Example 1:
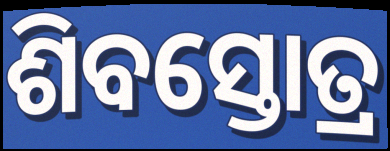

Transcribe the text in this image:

ଶିବସ୍ତୋତ୍ର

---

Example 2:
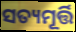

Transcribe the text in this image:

ସତ୍ୟମୂର୍ତ୍ତି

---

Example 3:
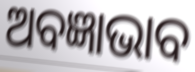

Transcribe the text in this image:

ଅବଜ୍ଞାଭାବ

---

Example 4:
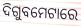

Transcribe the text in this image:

ଦିଗୁବମେଟାରେ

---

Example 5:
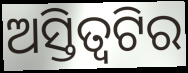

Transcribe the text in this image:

ଅସ୍ତିତ୍ୱଟିର